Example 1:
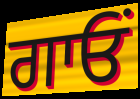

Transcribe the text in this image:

ਗਾਓਂ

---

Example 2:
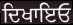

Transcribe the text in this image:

ਦਿਖਾਇਓ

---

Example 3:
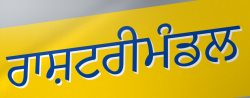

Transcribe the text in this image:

ਰਾਸ਼ਟਰੀਮੰਡਲ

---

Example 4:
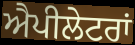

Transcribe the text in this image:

ਐਪੀਲੇਟਰਾਂ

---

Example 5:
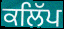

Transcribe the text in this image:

ਕਲਿੱਪ